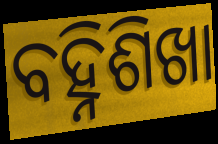
ବହ୍ନିଶିଖା